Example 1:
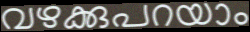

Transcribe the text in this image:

വഴക്കുപറയാം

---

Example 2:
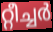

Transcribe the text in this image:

റ്റീച്ചർ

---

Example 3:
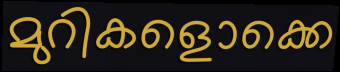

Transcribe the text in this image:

മുറികളൊക്കെ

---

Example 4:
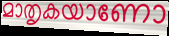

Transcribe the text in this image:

മാതൃകയാണോ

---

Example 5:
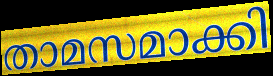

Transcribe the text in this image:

താമസമാക്കി